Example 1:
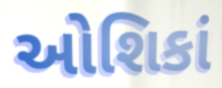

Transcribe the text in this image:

ઓશિકાં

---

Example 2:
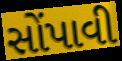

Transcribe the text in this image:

સોંપાવી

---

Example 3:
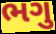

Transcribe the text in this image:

ભગુ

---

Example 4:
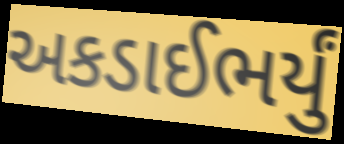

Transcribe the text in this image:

અકડાઈભર્યું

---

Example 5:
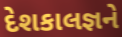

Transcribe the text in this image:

દેશકાલજ્ઞને